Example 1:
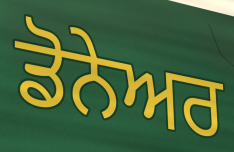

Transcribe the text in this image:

ਡੋਨੇਅਰ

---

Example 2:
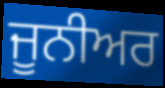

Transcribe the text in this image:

ਜੂਨੀਅਰ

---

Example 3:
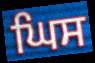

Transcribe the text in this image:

ਘਿਸ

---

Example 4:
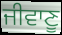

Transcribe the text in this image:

ਜੀਵਾਣੂ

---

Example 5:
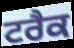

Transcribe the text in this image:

ਟਰੈਕ